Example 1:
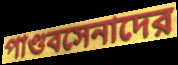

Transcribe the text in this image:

পাণ্ডবসেনাদের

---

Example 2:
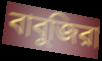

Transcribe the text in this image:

বাবুজিরা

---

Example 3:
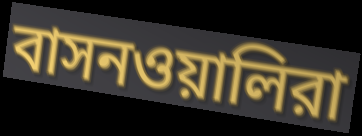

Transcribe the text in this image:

বাসনওয়ালিরা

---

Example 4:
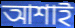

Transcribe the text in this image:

আশাই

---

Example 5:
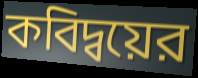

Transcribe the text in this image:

কবিদ্বয়ের